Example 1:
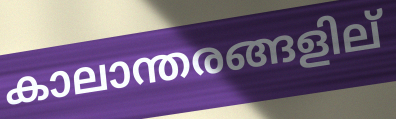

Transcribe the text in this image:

കാലാന്തരങ്ങളില്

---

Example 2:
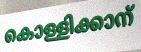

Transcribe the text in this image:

കൊള്ളിക്കാന്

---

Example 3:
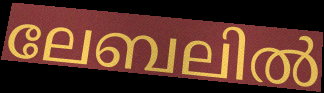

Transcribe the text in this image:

ലേബലിൽ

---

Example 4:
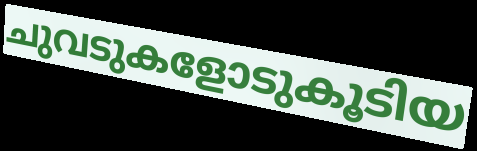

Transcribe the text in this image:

ചുവടുകളോടുകൂടിയ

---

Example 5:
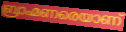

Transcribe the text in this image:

ബ്രാഹ്മണരെയാണ്